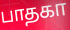
பாதகா